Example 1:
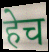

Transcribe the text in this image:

हेच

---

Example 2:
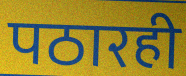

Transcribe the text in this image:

पठारही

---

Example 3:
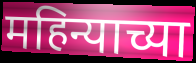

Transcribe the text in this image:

महिन्याच्या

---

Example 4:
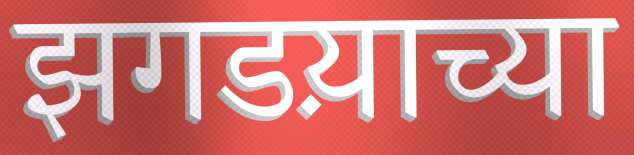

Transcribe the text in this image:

झगडय़ाच्या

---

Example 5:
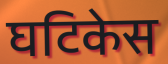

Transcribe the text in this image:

घटिकेस